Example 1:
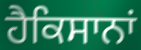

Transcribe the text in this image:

ਹੈਕਿਸਾਨਾਂ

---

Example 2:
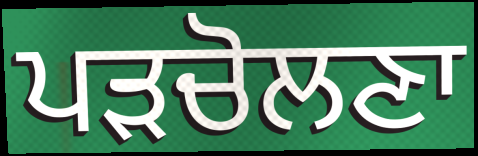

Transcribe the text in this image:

ਪੜਚੋਲਣਾ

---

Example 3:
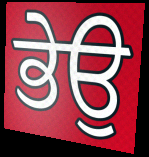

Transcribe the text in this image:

ਭੇਉ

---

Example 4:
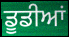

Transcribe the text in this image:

ਡੂਡੀਆਂ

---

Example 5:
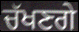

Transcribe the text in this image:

ਚੱਖਣਗੇ